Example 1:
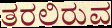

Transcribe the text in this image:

ತರಲಿರುವ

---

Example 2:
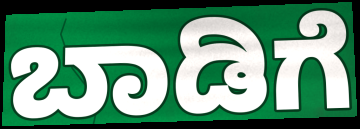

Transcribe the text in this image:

ಬಾಡಿಗೆ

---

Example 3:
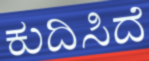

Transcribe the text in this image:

ಕುದಿಸಿದೆ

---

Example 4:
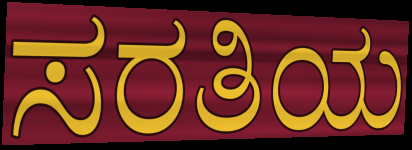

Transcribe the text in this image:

ಸರತಿಯ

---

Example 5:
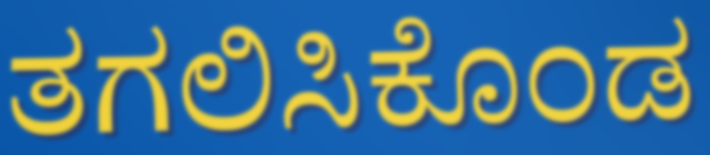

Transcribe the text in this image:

ತಗಲಿಸಿಕೊಂಡ